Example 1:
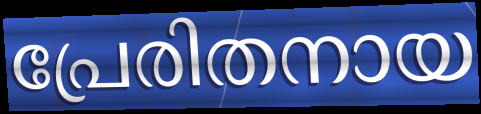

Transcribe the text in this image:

പ്രേരിതനായ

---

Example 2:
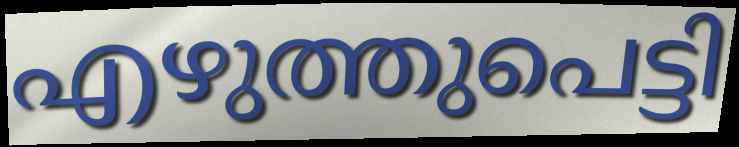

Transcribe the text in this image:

എഴുത്തുപെട്ടി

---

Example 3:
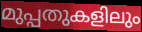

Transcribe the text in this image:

മുപ്പതുകളിലും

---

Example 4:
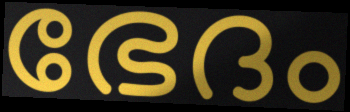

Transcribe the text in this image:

ഭേദം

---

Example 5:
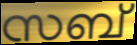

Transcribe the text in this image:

സബ്